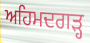
ਅਹਿਮਦਗੜ੍ਹ